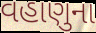
વહાણુના